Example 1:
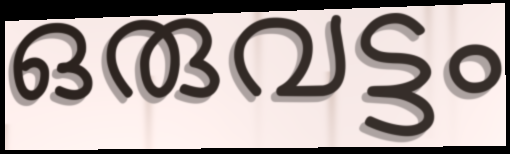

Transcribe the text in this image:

ഒരുവട്ടം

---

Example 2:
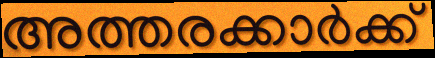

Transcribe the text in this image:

അത്തരക്കാർക്ക്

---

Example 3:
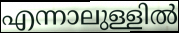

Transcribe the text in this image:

എന്നാലുള്ളിൽ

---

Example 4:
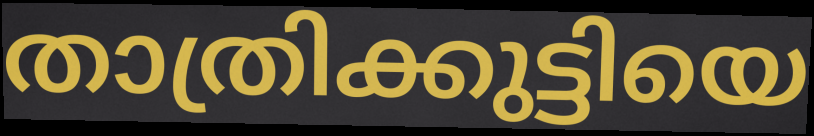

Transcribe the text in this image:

താത്രിക്കുട്ടിയെ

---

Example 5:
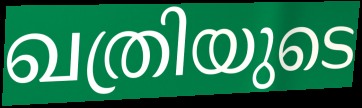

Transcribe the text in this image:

ഖത്രിയുടെ